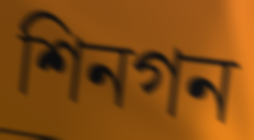
শিনগন